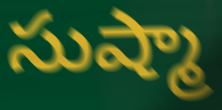
సుష్మా